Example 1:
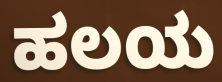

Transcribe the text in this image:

ಹಲಯ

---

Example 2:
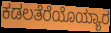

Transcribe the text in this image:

ಕಡಲತೆರೆಯೊಯ್ಯಾರ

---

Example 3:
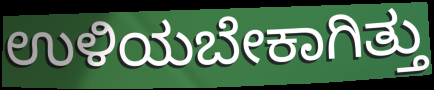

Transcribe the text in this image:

ಉಳಿಯಬೇಕಾಗಿತ್ತು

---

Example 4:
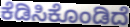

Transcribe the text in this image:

ಕೆಡಿಸಿಕೊಂಡಿದೆ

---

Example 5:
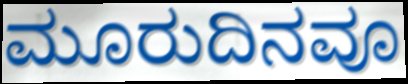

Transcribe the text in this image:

ಮೂರುದಿನವೂ